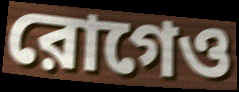
রোগেও